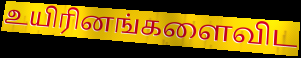
உயிரினங்களைவிட